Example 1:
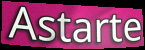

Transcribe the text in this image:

Astarte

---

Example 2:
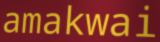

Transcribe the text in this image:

amakwai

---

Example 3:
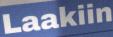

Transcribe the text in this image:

Laakiin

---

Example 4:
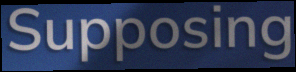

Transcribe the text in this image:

Supposing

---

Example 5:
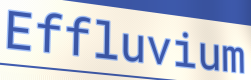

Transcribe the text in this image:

Effluvium